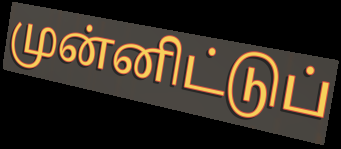
முன்னிட்டுப்